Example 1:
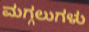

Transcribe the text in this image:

ಮಗ್ಗಲುಗಳು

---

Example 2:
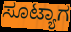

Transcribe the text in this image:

ಸೂಟ್ಯಾಗ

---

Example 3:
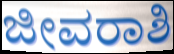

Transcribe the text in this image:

ಜೀವರಾಶಿ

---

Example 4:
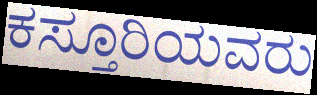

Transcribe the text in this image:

ಕಸ್ತೂರಿಯವರು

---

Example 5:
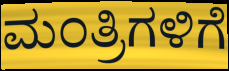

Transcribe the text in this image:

ಮಂತ್ರಿಗಳಿಗೆ